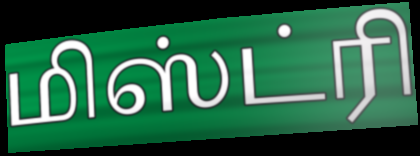
மிஸ்ட்ரி